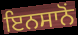
ਇਨਸਾਨੋਂ